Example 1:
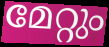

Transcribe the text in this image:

മേറ്റും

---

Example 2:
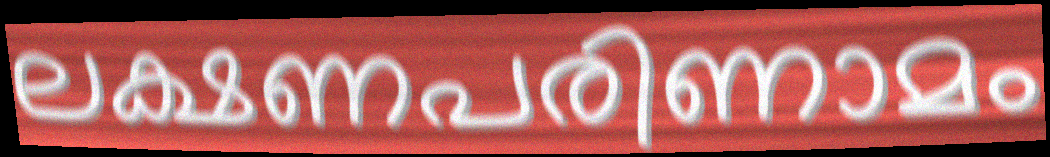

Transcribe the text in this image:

ലക്ഷണപരിണാമം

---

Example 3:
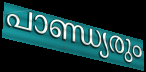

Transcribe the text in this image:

പാണ്ഡ്യരും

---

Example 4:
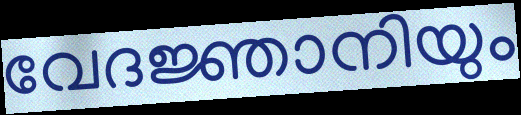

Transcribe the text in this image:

വേദജ്ഞാനിയും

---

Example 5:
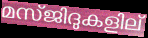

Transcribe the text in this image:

മസ്ജിദുകളില്